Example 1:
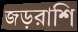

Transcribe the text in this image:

জড়রাশি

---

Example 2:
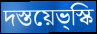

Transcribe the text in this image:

দস্তয়েভ্স্কি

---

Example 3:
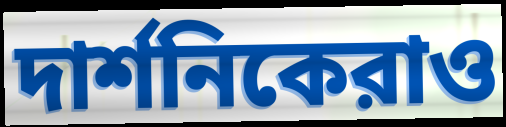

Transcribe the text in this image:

দার্শনিকেরাও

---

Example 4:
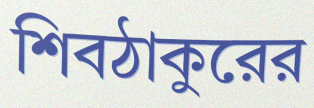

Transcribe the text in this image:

শিবঠাকুরের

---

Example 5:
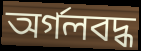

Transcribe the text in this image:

অর্গলবদ্ধ